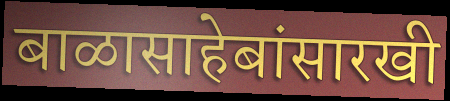
बाळासाहेबांसारखी